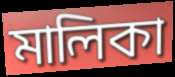
মালিকা